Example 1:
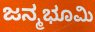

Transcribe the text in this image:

ಜನ್ಮಭೂಮಿ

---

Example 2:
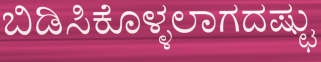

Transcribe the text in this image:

ಬಿಡಿಸಿಕೊಳ್ಳಲಾಗದಷ್ಟು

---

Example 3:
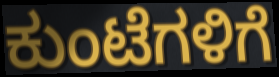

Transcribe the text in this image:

ಕುಂಟೆಗಳಿಗೆ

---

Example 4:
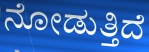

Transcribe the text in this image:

ನೋಡುತ್ತಿದೆ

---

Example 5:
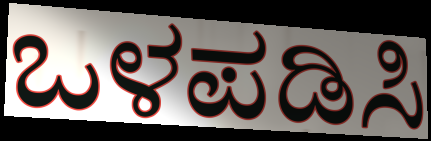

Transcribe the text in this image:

ಒಳಪಡಿಸಿ